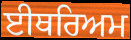
ਈਥਰਿਅਮ